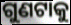
ଗୁଣଟାକୁ